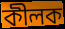
কীলক